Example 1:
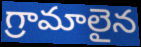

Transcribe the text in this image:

గ్రామాలైన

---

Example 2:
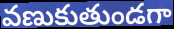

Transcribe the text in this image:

వణుకుతుండగా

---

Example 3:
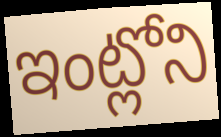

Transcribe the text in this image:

ఇంట్లోని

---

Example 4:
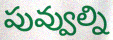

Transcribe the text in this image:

పువ్వుల్ని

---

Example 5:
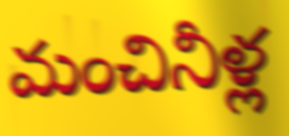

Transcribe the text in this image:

మంచినీళ్ల